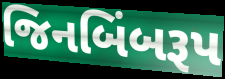
જિનબિંબરૂપ